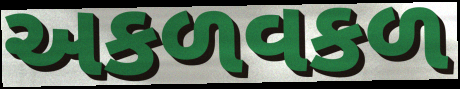
અકળવકળ